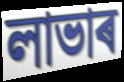
লাভাৰ